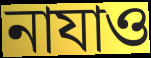
নাযাও